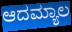
ಆದಮ್ಯಾಲ